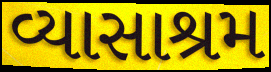
વ્યાસાશ્રમ